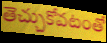
తెచ్చుకోవటంతో